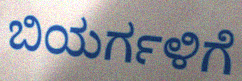
ಬಿಯರ್ಗಳಿಗೆ